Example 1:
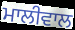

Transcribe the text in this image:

ਮਾਲੀਵਾਲ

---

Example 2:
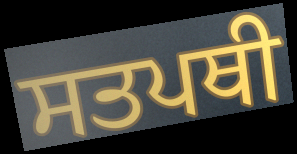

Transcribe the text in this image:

ਸਤਪਥੀ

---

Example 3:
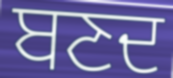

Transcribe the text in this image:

ਬਣਦ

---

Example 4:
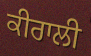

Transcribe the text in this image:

ਕੀਰਾਲੀ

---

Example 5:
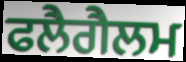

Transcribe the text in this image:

ਫਲੈਗੈਲਮ